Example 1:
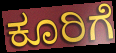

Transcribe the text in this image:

ಕೂರಿಗೆ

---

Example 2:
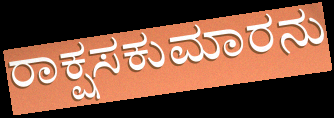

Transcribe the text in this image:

ರಾಕ್ಷಸಕುಮಾರನು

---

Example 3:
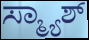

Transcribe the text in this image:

ಸ್ಮ್ಯಾಶ್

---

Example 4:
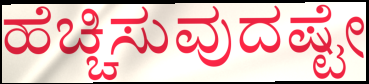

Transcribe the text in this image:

ಹೆಚ್ಚಿಸುವುದಷ್ಟೇ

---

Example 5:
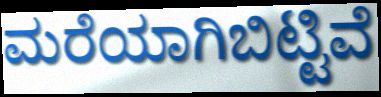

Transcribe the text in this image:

ಮರೆಯಾಗಿಬಿಟ್ಟಿವೆ